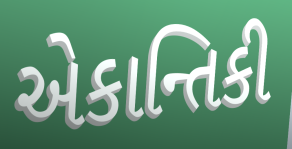
એકાન્તિકી